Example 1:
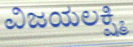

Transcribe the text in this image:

ವಿಜಯಲಕ್ಷ್ಮಿ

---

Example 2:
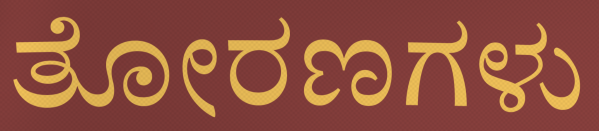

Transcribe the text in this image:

ತೋರಣಗಳು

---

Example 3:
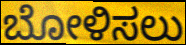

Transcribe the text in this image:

ಬೋಳಿಸಲು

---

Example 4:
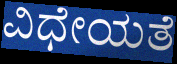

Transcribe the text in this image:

ವಿಧೇಯತೆ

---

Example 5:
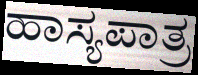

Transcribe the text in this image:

ಹಾಸ್ಯಪಾತ್ರ